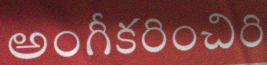
అంగీకరించిరి